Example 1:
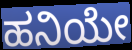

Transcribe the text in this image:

ಹನಿಯೇ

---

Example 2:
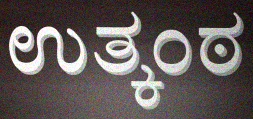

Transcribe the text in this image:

ಉತ್ಕಂಠ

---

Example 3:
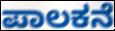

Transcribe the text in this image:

ಪಾಲಕನೆ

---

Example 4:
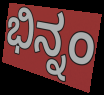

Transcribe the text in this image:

ಭಿನ್ನಂ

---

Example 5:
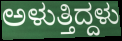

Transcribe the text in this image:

ಅಳುತ್ತಿದ್ದಳು